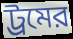
ট্রমের